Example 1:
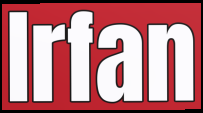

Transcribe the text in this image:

Irfan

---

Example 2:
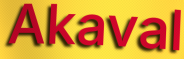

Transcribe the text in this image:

Akaval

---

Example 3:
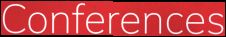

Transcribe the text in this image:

Conferences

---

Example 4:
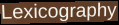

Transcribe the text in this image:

Lexicography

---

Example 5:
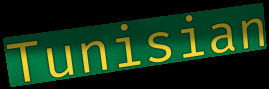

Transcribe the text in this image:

Tunisian